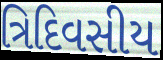
ત્રિદિવસીય